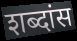
शब्दांस